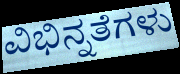
ವಿಭಿನ್ನತೆಗಳು